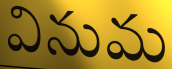
వినుమ